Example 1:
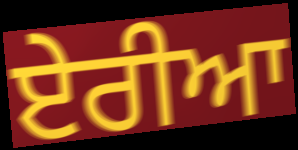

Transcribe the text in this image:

ਏਰੀਆ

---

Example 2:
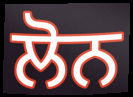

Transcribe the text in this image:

ਲੋਨ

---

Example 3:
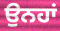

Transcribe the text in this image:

ਉਨਹਾਂ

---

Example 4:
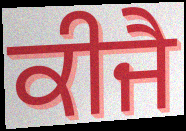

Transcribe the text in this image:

ਕੀਜੈ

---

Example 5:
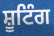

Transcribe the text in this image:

ਸ਼ੂਟਿੰਗ